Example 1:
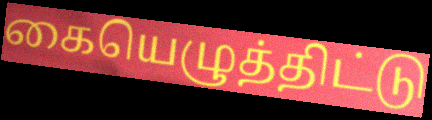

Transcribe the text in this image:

கையெழுத்திட்டு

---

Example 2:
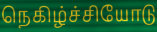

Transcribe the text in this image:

நெகிழ்ச்சியோடு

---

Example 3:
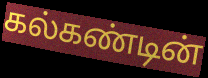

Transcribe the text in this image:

கல்கண்டின்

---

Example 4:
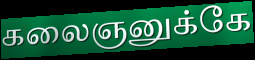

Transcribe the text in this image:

கலைஞனுக்கே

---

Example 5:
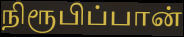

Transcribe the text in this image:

நிரூபிப்பான்